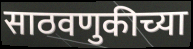
साठवणुकीच्या